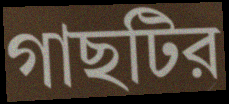
গাছটির